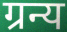
ग्रन्य